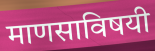
माणसाविषयी